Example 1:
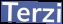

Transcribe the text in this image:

Terzi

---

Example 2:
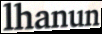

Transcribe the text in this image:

lhanun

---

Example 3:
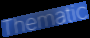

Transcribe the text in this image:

Thematic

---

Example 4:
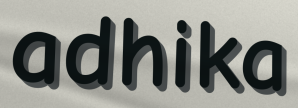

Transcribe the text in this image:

adhika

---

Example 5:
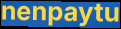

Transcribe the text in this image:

nenpaytu